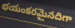
భయంకరమైనదిగా